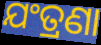
ଯଂତ୍ରଣା